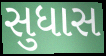
સુધાસ